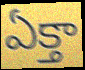
ఏక్తా